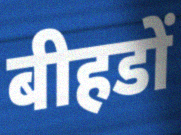
बीहडों